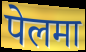
पेलमा